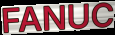
FANUC